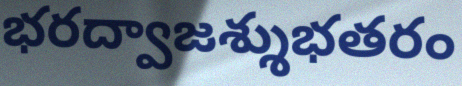
భరద్వాజశ్శుభతరం